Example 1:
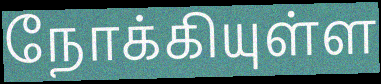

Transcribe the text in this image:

நோக்கியுள்ள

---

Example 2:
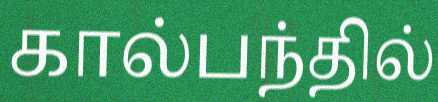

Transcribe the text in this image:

கால்பந்தில்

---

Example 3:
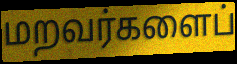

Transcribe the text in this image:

மறவர்களைப்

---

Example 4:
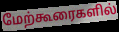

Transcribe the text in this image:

மேற்கூரைகளில்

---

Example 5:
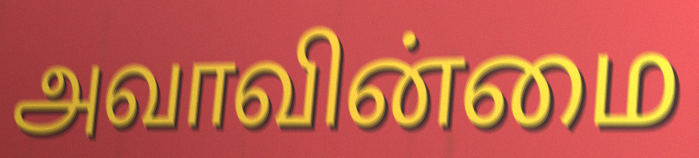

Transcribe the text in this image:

அவாவின்மை